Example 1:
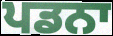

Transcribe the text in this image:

ਪਡਨਾ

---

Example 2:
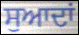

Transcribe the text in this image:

ਸੁਆਦਾਂ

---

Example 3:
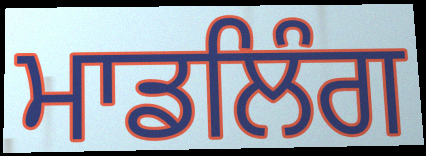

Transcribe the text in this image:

ਮਾਡਲਿੰਗ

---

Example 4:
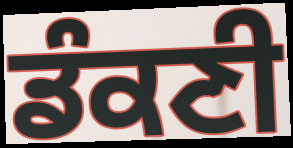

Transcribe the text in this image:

ਡੰਕਣੀ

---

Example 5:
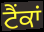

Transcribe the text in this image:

ਟੈਂਕਾਂ